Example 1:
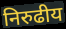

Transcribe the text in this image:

निरुढीय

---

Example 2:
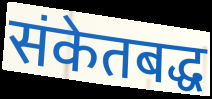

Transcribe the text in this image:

संकेतबद्ध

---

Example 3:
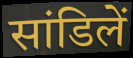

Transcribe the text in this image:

सांडिलें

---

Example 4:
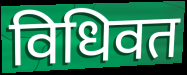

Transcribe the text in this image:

विधिवत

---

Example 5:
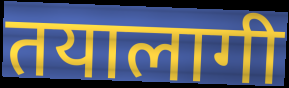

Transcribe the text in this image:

तयालागी